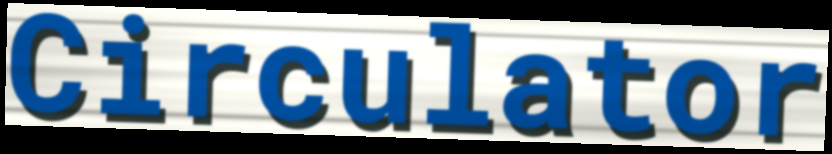
Circulator